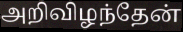
அறிவிழந்தேன்